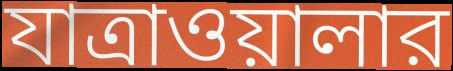
যাত্রাওয়ালার